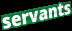
servants